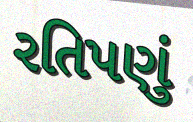
રતિપણું